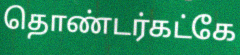
தொண்டர்கட்கே